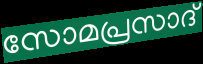
സോമപ്രസാദ്